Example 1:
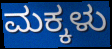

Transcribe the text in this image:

ಮಕ್ಕಳು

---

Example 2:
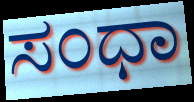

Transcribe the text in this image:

ಸಂಧಾ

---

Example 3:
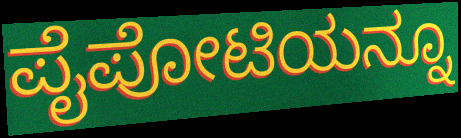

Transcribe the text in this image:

ಪೈಪೋಟಿಯನ್ನೂ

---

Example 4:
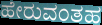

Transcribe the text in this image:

ಹೇರುವಂತಹ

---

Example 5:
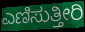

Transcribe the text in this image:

ಎಣಿಸುತ್ತೀರಿ